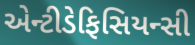
એન્ટીડેફિસિયન્સી